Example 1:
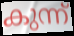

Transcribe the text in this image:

കുന്ന്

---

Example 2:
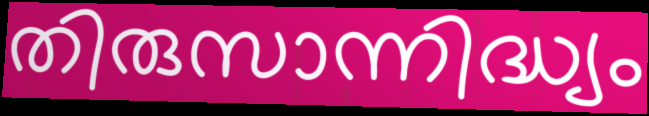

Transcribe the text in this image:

തിരുസാന്നിദ്ധ്യം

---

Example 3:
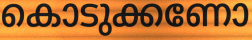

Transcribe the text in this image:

കൊടുക്കണോ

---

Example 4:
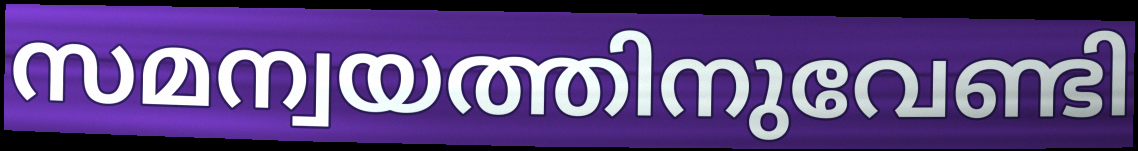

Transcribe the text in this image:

സമന്വയത്തിനുവേണ്ടി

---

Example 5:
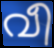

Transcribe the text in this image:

വീ